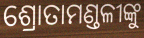
ଶ୍ରୋତାମଣ୍ଡଳୀଙ୍କୁ